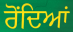
ਰੋਂਦਿਆਂ